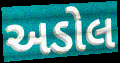
અડોલ